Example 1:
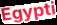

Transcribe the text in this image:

Egypti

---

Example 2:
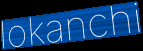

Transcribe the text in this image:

lokanchi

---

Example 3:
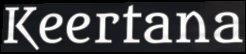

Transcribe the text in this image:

Keertana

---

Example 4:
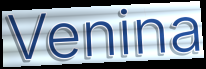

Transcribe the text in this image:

Venina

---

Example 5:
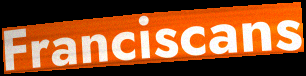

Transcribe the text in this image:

Franciscans